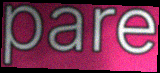
pare